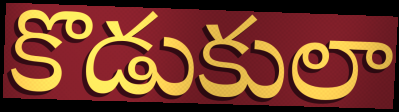
కొడుకులా